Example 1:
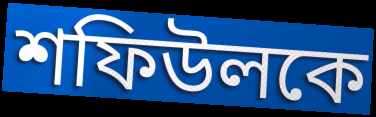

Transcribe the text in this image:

শফিউলকে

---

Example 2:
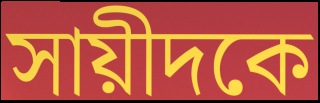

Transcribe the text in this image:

সায়ীদকে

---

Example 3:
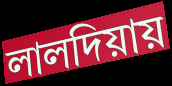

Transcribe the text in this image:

লালদিয়ায়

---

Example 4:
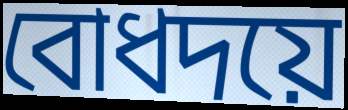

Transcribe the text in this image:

বোধদয়ে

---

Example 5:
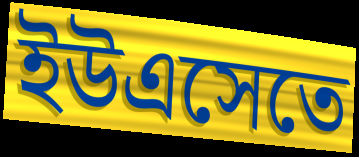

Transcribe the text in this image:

ইউএসেতে